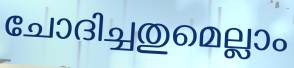
ചോദിച്ചതുമെല്ലാം